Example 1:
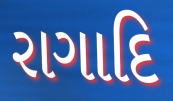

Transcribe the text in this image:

રાગાદિ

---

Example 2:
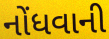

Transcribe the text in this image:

નોંધવાની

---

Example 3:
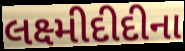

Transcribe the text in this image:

લક્ષ્મીદીદીના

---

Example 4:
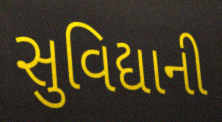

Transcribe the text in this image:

સુવિદ્યાની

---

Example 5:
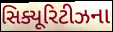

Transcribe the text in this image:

સિક્યૂરિટીઝના